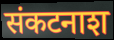
संकटनाश